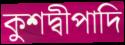
কুশদ্বীপাদি